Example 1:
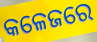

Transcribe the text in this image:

କଳେଜରେ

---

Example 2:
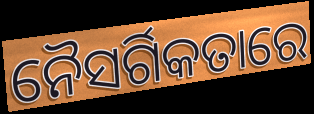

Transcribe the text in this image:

ନୈସର୍ଗିକତାରେ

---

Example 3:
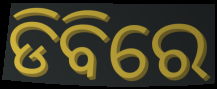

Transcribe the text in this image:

ଡିବିରେ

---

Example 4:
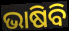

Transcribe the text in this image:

ଭାଷିବି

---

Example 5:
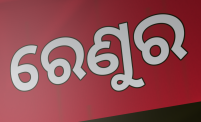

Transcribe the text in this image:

ରେଣୁର